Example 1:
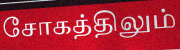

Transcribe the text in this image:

சோகத்திலும்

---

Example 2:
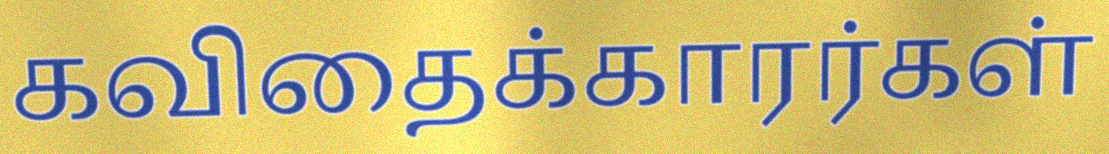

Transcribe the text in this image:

கவிதைக்காரர்கள்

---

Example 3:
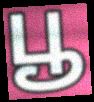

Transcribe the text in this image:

பூ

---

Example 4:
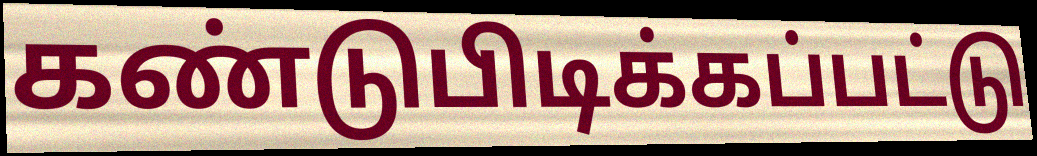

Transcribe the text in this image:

கண்டுபிடிக்கப்பட்டு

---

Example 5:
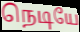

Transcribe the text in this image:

நெடியே